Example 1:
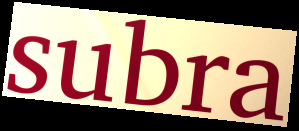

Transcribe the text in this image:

subra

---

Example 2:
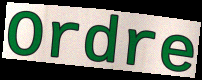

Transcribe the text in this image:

Ordre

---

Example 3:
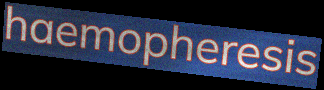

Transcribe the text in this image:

haemopheresis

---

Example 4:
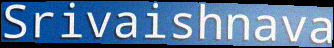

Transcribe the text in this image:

Srivaishnava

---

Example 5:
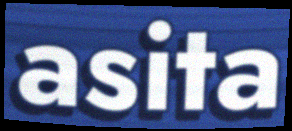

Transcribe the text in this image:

asita